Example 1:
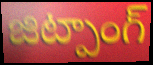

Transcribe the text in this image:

జిట్పాంగ్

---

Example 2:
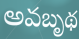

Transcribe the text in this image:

అవబృథ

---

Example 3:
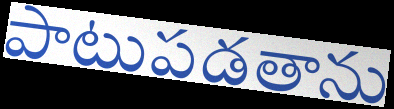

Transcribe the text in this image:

పాటుపడతాను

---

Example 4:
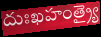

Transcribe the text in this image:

దుఃఖహంత్ర్యై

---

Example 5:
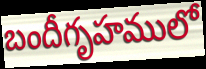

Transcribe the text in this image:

బందీగృహములో